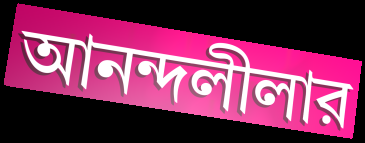
আনন্দলীলার